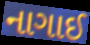
નાગાઈ